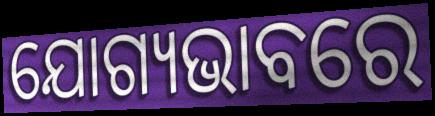
ଯୋଗ୍ୟଭାବରେ